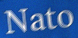
Nato